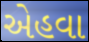
એહવા